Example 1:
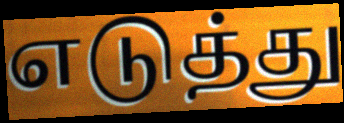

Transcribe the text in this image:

எடுத்து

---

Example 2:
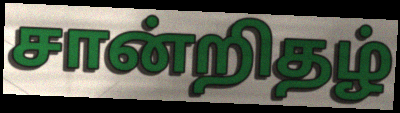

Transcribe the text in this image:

சான்றிதழ்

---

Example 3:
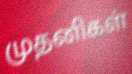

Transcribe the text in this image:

முதனிகள்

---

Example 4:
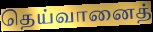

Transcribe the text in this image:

தெய்வானைத்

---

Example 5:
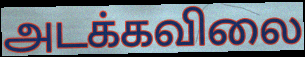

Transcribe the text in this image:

அடக்கவிலை